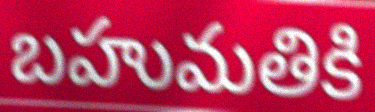
బహుమతికి